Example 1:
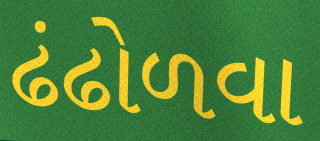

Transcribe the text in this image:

ઢંઢોળવા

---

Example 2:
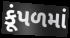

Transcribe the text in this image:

કૂંપળમાં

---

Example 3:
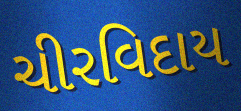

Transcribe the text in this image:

ચીરવિદાય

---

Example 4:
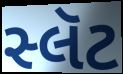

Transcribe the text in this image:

સ્લૅટ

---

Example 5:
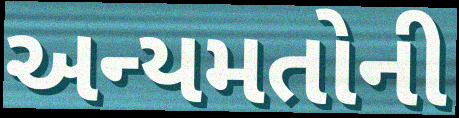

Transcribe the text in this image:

અન્યમતોની